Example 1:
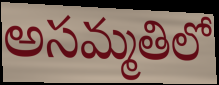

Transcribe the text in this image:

అసమ్మతిలో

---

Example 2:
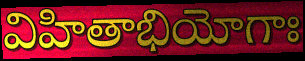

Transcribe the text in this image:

విహితాభియోగాః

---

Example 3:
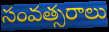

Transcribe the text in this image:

సంవత్సరాలు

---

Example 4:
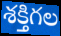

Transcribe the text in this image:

శక్తిగల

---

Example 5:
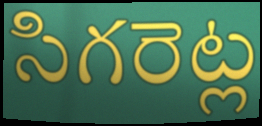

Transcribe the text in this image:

సిగరెట్ల